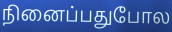
நினைப்பதுபோல